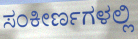
ಸಂಕೀರ್ಣಗಳಲ್ಲಿ